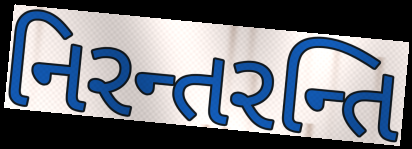
નિરન્તરન્તિ